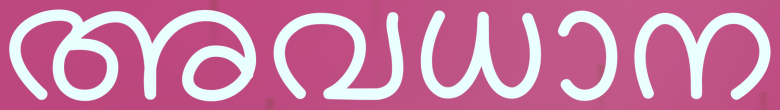
അവധാന